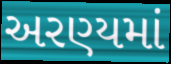
અરણ્યમાં